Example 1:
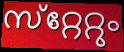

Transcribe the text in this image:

സ്‌റ്റേറ്റും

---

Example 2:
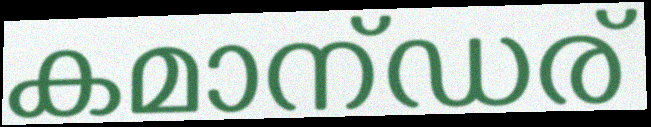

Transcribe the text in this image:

കമാന്ഡര്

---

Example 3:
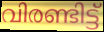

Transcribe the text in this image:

വിരണ്ടിട്ട്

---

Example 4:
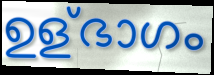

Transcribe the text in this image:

ഉള്ഭാഗം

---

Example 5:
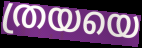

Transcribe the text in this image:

ത്രയയെ